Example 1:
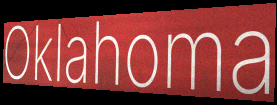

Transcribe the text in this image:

Oklahoma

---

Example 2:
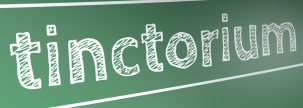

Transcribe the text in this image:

tinctorium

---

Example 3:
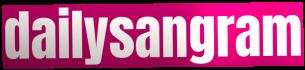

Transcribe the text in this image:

dailysangram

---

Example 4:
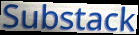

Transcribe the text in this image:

Substack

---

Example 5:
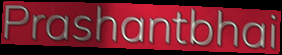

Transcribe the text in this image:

Prashantbhai